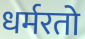
धर्मरतो